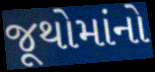
જૂથોમાંનો